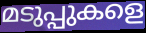
മടുപ്പുകളെ